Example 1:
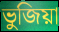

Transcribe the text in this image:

ভুজিয়া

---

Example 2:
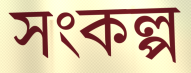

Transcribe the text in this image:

সংকল্প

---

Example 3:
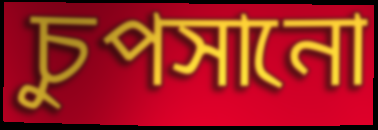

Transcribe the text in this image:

চুপসানো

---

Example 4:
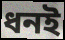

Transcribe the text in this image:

ধনই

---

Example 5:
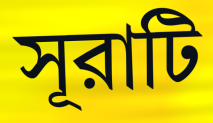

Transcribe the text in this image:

সূরাটি